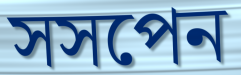
সসপেন